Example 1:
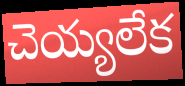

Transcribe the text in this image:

చెయ్యలేక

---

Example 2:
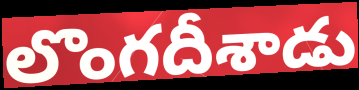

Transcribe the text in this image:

లొంగదీశాడు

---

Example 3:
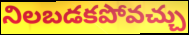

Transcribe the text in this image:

నిలబడకపోవచ్చు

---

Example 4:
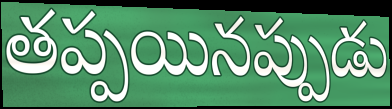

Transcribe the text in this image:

తప్పయినప్పుడు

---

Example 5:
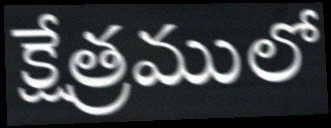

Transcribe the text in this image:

క్షేత్రములో